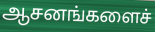
ஆசனங்களைச்